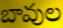
బావుల